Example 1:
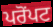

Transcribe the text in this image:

ਪਰੋਂਪਟ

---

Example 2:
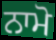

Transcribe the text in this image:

ਨਾਮੋ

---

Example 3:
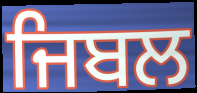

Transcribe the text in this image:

ਜਿਬਲ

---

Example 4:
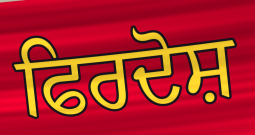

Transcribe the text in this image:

ਫਿਰਦੋਸ਼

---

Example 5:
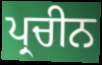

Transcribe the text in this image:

ਪ੍ਰਚੀਨ